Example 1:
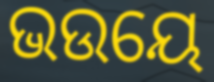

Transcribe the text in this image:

ଭଉୟେ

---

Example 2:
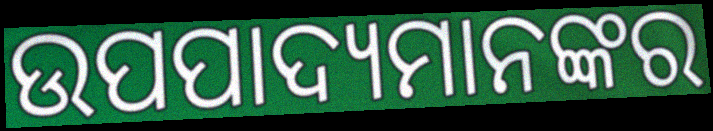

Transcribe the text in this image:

ଉପପାଦ୍ୟମାନଙ୍କର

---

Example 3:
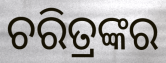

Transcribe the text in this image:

ଚରିତ୍ରଙ୍କର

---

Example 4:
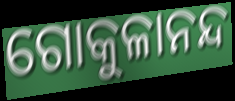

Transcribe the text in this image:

ଗୋକୁଳାନନ୍ଦ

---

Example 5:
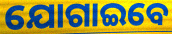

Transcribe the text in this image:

ଯୋଗାଇବେ